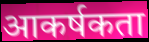
आकर्षकता